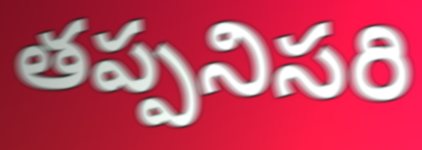
తప్పనిసరి